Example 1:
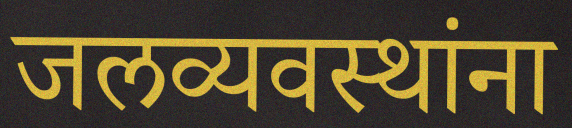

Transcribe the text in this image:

जलव्यवस्थांना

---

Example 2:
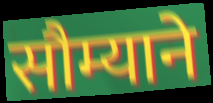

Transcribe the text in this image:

सौम्याने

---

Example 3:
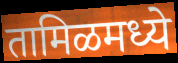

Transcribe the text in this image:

तामिळमध्ये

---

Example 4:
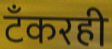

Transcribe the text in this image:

टँकरही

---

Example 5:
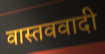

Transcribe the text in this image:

वास्तववादी